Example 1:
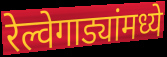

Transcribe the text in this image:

रेल्वेगाड्यांमध्ये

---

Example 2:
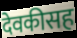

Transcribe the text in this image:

देवकीसह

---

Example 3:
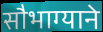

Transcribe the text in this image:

सौभाग्याने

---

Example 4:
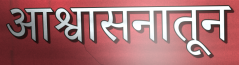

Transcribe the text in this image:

आश्वासनातून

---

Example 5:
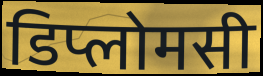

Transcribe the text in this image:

डिप्लोमसी